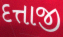
દત્તાજી